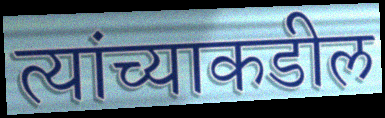
त्यांच्याकडील